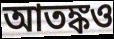
আতঙ্কও